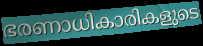
ഭരണാധികാരികളുടെ